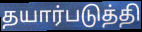
தயார்படுத்தி